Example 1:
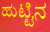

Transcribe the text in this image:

ಹುಟ್ಟಿನ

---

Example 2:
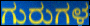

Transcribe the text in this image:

ಗುರುಗಳ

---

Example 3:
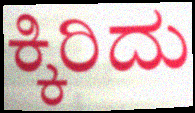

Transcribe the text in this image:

ಕ್ಕಿರಿದು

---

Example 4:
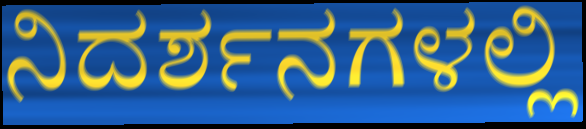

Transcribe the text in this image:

ನಿದರ್ಶನಗಳಲ್ಲಿ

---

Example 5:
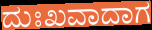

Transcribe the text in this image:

ದುಃಖವಾದಾಗ